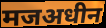
मजअधीन